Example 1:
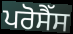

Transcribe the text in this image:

ਪਰੋਸੈੱਸ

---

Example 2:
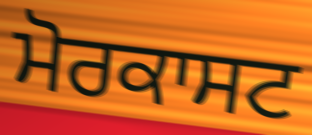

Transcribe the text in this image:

ਮੋਰਕਾਸਟ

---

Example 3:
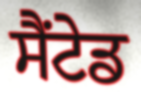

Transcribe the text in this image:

ਸੈਂਟੇਡ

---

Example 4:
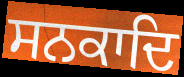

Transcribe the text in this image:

ਸਨਕਾਦਿ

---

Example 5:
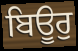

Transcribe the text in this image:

ਬਿਊਰੁ